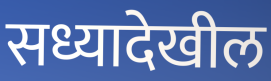
सध्यादेखील